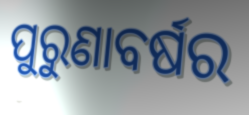
ପୁରୁଣାବର୍ଷର